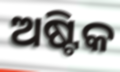
ଅଷ୍ଟିକ